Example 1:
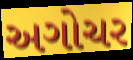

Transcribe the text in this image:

અગોચર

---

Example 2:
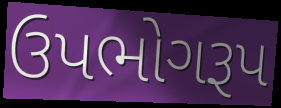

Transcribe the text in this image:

ઉપભોગરૂપ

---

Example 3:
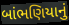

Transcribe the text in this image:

બાંભણિયાનું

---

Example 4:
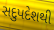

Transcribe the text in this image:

સદુપદેશથી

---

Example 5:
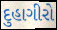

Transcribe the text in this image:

દુહાગીરો